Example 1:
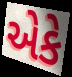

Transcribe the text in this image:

એકે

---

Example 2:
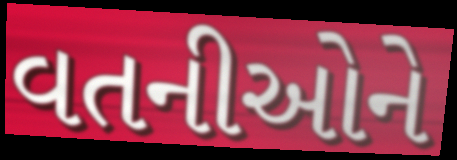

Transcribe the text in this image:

વતનીઓને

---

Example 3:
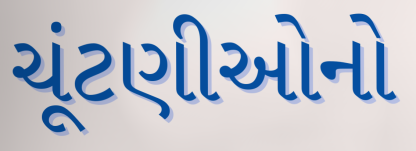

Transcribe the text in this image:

ચૂંટણીઓનો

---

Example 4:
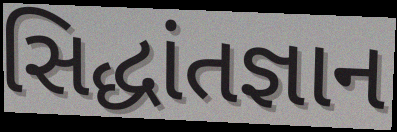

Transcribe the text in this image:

સિદ્ધાંતજ્ઞાન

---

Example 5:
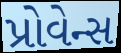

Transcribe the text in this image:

પ્રોવેન્સ